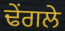
ਢੇਂਗਲੇ